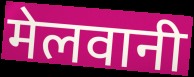
मेलवानी